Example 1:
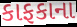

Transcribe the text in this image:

કાફકાના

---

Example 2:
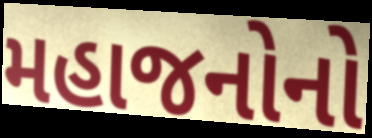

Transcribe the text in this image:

મહાજનોનો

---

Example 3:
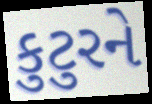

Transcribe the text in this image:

કુટુરને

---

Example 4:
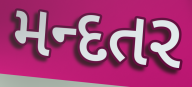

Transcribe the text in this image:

મન્દતર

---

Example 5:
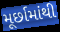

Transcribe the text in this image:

મૂર્છામાંથી